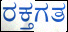
ರಕ್ತಗತ